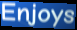
Enjoys